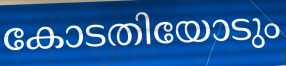
കോടതിയോടും